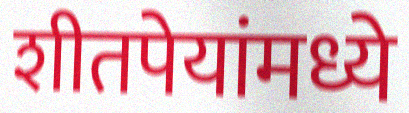
शीतपेयांमध्ये